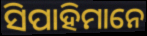
ସିପାହିମାନେ